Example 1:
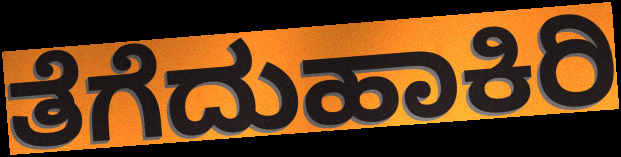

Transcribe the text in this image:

ತೆಗೆದುಹಾಕಿರಿ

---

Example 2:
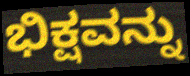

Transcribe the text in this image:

ಭಿಕ್ಷವನ್ನು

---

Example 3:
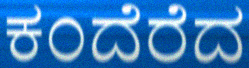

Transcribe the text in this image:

ಕಂದೆರೆದ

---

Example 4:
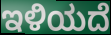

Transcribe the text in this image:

ಇಳಿಯದೆ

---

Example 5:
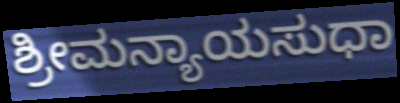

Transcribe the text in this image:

ಶ್ರೀಮನ್ಯಾಯಸುಧಾ